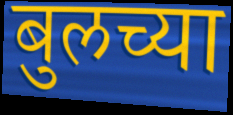
बुलच्या